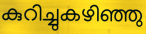
കുറിച്ചുകഴിഞ്ഞു